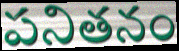
పనితనం